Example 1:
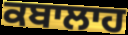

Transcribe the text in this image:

ਕਬਾਲਾਹ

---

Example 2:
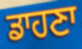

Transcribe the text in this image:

ਡਾਹਣਾ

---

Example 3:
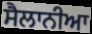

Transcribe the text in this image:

ਸੈਲਾਨੀਆ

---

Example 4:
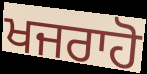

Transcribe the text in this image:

ਖਜਰਾਹੋ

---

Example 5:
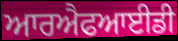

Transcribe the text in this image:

ਆਰਐਫਆਈਡੀ